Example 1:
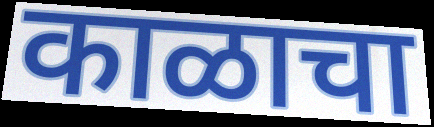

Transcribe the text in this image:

काळाचा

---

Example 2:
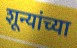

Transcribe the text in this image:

शून्यांच्या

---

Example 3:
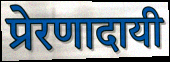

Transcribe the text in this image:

प्रेरणादायी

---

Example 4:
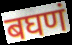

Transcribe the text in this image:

बघणं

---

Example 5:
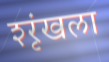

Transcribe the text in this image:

श्रृंखला